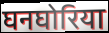
घनघोरिया